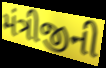
મંત્રીજીની